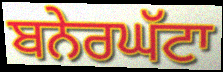
ਬਨੇਰਘੱਟਾ